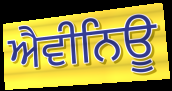
ਐਵੀਨਿਊ